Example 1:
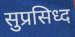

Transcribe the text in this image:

सुप्रसिध्द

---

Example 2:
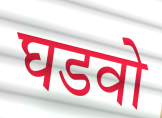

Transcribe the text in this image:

घडवो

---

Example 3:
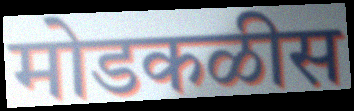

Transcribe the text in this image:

मोडकळीस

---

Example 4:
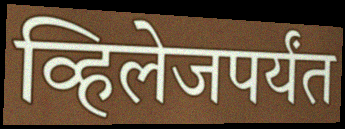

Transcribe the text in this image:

व्हिलेजपर्यंत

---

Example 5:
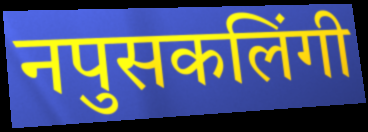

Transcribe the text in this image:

नपुसकलिंगी